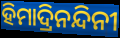
ହିମାଦ୍ରିନନ୍ଦିନୀ